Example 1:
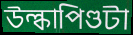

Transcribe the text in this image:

উল্কাপিণ্ডটা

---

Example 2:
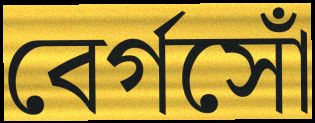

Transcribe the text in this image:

বের্গসোঁ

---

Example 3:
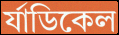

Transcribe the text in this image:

র্যাডিকেল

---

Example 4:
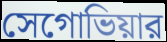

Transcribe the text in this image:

সেগোভিয়ার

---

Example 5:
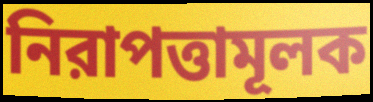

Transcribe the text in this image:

নিরাপত্তামূলক